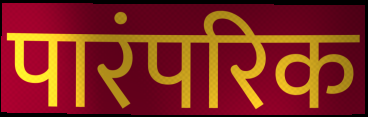
पारंपरिक